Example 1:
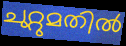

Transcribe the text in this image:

ചുറ്റുമതിൽ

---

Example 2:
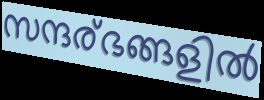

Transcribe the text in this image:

സന്ദര്ഭങ്ങളിൽ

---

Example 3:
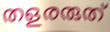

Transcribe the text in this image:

തളരരുത്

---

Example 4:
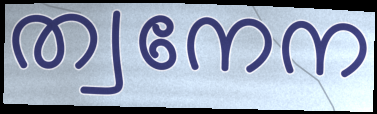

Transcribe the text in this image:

ത്വനേന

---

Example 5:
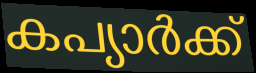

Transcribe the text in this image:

കപ്യാർക്ക്